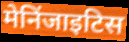
मेनिंजाइटिस